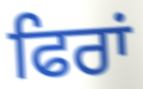
ਫਿਰਾਂ